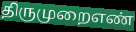
திருமுறைஎண்